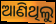
ଆଣିଥିଲୁ